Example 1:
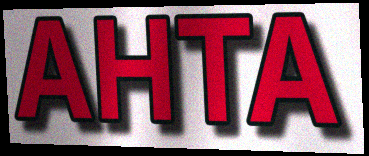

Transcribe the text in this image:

AHTA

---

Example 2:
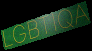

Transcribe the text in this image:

LGBTIQA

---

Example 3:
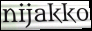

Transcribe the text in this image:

nijakko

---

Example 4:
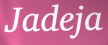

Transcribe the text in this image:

Jadeja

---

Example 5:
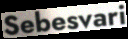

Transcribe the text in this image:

Sebesvari